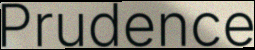
Prudence